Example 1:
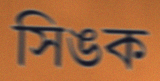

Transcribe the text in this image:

সিঙক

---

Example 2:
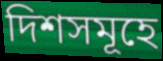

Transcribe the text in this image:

দিশসমূহে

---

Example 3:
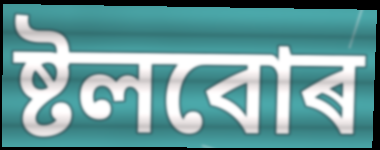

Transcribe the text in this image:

ষ্টলবোৰ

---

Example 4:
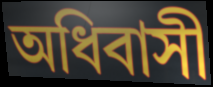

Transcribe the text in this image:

অধিবাসী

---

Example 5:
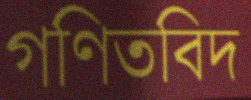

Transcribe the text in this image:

গণিতবিদ